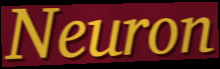
Neuron